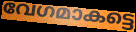
വേഗമാകട്ടെ